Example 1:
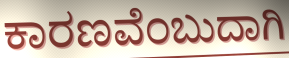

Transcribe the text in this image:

ಕಾರಣವೆಂಬುದಾಗಿ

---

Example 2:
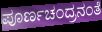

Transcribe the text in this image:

ಪೂರ್ಣಚಂದ್ರನಂತೆ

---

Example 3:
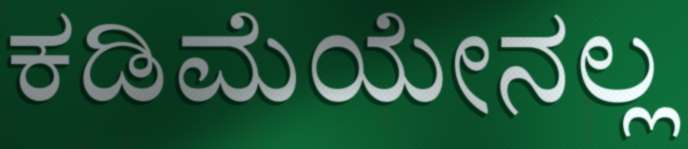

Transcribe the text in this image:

ಕಡಿಮೆಯೇನಲ್ಲ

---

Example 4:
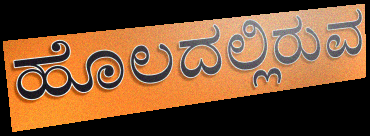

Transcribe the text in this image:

ಹೊಲದಲ್ಲಿರುವ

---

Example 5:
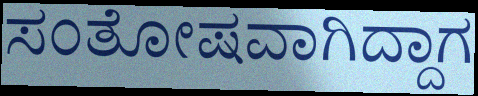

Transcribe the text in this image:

ಸಂತೋಷವಾಗಿದ್ದಾಗ